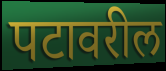
पटावरील